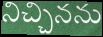
నిచ్చినను